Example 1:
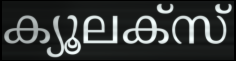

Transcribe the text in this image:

ക്യൂലക്സ്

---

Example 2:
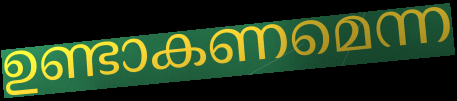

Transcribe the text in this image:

ഉണ്ടാകണമെന്ന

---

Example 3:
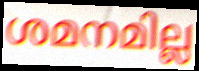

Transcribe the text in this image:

ശമനമില്ല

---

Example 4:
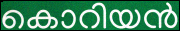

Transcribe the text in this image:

കൊറിയൻ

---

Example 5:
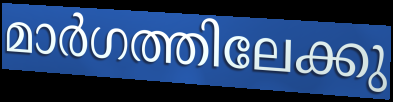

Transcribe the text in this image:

മാർഗത്തിലേക്കു